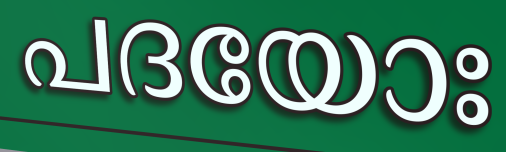
പദയോഃ